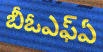
బీఓఎఫ్ఏ